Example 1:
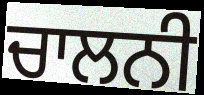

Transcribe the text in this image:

ਚਾਲਨੀ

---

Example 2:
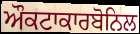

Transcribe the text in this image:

ਔਕਟਾਕਾਰਬੋਨਿਲ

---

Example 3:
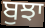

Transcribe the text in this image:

ਬੁਝਾ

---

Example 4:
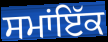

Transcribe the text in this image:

ਸਮਾਂਇੱਕ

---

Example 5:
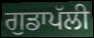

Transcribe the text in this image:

ਗੁਡਾਪੱਲੀ